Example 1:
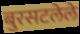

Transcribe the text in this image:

बुरसटलेले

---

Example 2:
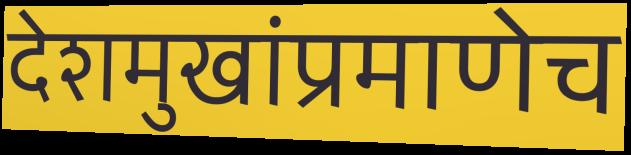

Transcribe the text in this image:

देशमुखांप्रमाणेच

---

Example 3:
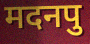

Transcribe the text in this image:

मदनपु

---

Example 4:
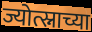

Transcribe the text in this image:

ज्योत्स्नाच्या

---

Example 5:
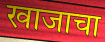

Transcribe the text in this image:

खाजाचा